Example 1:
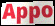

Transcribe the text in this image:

Appo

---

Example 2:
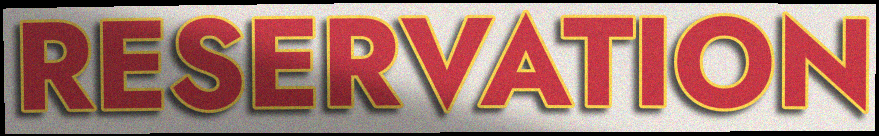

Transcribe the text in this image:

RESERVATION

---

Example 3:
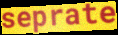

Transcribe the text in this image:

seprate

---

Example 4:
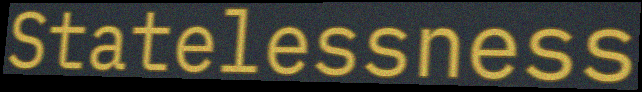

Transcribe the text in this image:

Statelessness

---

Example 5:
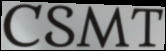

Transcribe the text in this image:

CSMT